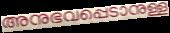
അനുഭവപ്പെടാനുള്ള